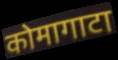
कोमागाटा